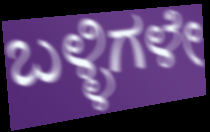
ಬಳ್ಳಿಗಳೇ